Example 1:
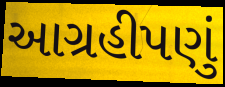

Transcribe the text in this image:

આગ્રહીપણું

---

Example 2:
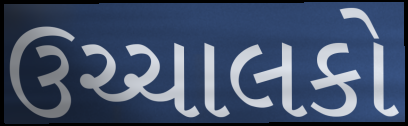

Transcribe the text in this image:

ઉચ્ચાલકો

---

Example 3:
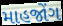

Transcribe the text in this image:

માહજોંગ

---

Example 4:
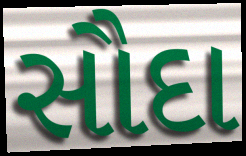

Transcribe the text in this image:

સૌદા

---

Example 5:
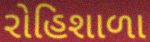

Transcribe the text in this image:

રોહિશાળા